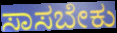
ಸಾಸಬೇಕು